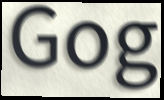
Gog